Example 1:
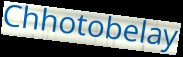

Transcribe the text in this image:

Chhotobelay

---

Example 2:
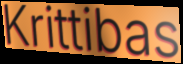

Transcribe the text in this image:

Krittibas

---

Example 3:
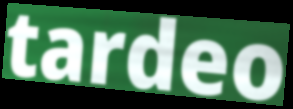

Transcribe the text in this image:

tardeo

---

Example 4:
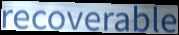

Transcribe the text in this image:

recoverable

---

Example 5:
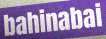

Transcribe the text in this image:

bahinabai